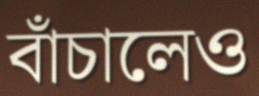
বাঁচালেও